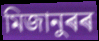
মিজানুৰৰ